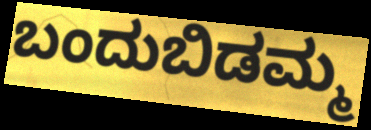
ಬಂದುಬಿಡಮ್ಮ